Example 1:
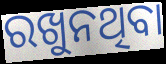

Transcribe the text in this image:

ରଖୁନଥିବା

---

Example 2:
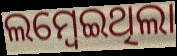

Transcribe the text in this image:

ଲମ୍ବେଇଥିଲା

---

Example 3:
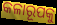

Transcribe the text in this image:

କଳାରୂପକୁ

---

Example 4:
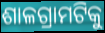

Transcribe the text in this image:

ଶାଳଗ୍ରାମଟିକୁ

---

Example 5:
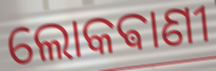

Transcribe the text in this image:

ଲୋକଵାଣୀ